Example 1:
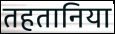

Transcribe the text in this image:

तहतानिया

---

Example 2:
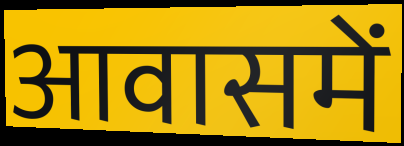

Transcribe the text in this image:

आवासमें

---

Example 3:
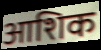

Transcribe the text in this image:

आशिक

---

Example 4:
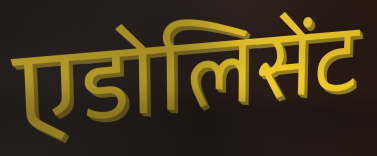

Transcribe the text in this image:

एडोलिसेंट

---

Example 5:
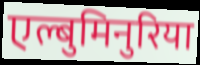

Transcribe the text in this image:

एल्बुमिनुरिया